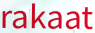
rakaat